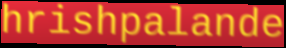
hrishpalande